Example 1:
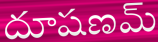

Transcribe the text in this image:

దూషణమ్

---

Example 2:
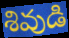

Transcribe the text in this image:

శివుడి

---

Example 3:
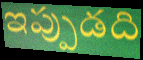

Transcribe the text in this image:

ఇప్పుడది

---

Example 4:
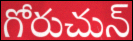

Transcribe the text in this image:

గోరుచున్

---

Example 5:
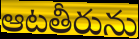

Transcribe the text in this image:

ఆటతీరును